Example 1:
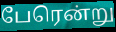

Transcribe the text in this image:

பேரென்று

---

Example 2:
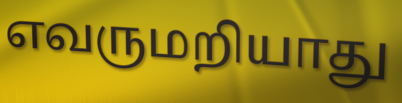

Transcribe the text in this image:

எவருமறியாது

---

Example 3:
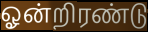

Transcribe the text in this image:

ஓன்றிரண்டு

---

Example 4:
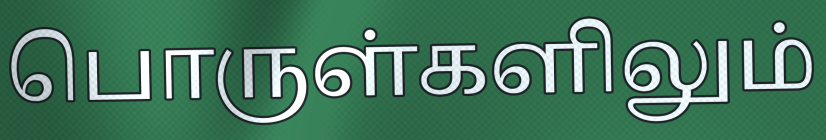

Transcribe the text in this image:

பொருள்களிலும்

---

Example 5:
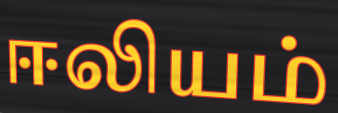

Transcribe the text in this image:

ஈலியம்